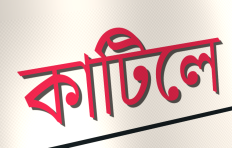
কাটিলে